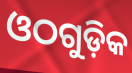
ଓଠଗୁଡ଼ିକ